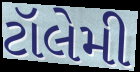
ટૉલેમી